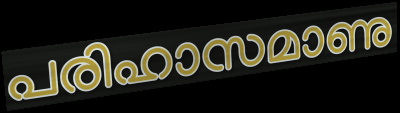
പരിഹാസമാണു